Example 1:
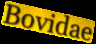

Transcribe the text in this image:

Bovidae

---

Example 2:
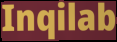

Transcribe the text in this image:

Inqilab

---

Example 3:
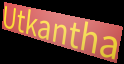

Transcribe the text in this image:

Utkantha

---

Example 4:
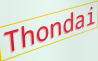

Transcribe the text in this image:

Thondai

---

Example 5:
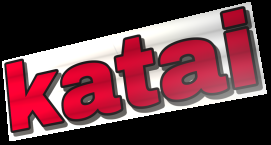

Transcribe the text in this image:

katai